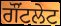
ਗੌਂਟਲੇਟ